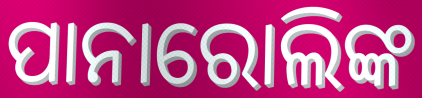
ପାନାରୋଲିଙ୍କ